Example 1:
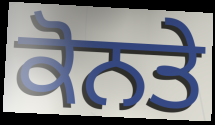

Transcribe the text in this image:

ਕੋਨਤੇ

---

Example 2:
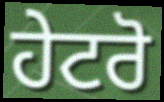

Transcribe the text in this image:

ਹੇਟਰੋ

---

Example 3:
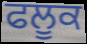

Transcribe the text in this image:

ਫਲੂਕ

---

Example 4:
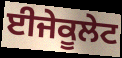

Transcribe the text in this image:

ਈਜੇਕੂਲੇਟ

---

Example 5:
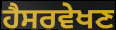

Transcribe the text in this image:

ਹੈਸਰਵੇਖਣ